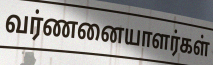
வர்ணனையாளர்கள்